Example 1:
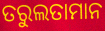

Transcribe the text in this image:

ତରୁଲତାମାନ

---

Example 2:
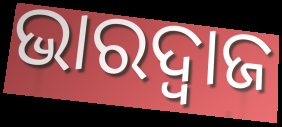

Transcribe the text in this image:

ଭାରଦ୍ୱାଜ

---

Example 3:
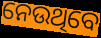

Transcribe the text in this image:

ନେଉଥିବେ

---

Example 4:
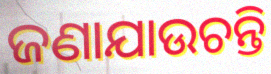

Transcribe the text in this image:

ଜଣାଯାଉଚନ୍ତି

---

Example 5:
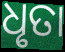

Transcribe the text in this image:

ଧୃତା